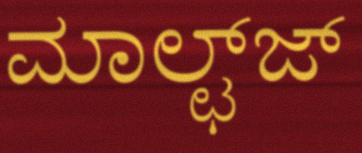
ಮಾಲ್ಟ್‌ಜ್